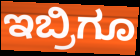
ಇಬ್ರಿಗೂ